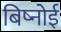
बिष्नोई